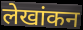
लेखांकन